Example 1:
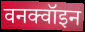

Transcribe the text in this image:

वनक्वॉइन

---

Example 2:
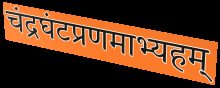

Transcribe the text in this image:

चंद्रघंटप्रणमाभ्यहम्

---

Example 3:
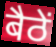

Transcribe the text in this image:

बैठें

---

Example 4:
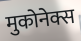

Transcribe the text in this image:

मुकोनेक्स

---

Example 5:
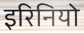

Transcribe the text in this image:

इरिनियो